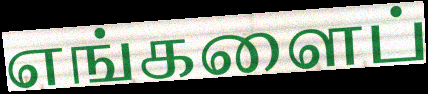
எங்களைப்